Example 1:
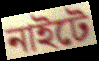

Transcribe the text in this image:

নাইটে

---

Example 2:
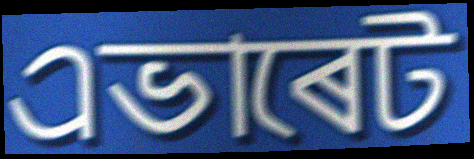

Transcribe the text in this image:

এভাৰেট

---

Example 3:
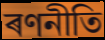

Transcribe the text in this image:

ৰণনীতি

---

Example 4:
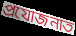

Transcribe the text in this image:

প্ৰযোজনাত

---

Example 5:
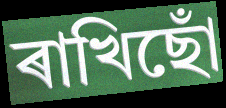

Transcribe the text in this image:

ৰাখিছোঁ